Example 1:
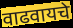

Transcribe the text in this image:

वाढवायचे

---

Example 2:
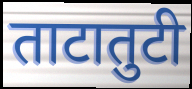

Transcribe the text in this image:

ताटातुटी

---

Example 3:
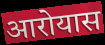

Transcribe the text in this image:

आरोयास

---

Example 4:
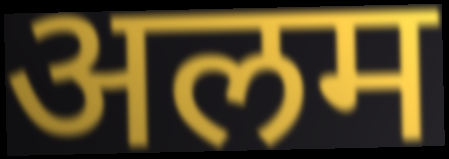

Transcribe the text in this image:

अलम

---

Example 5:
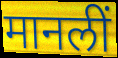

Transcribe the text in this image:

मानलीं